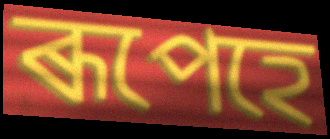
ৰূপেহে